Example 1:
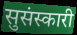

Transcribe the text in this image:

सुसंस्कारी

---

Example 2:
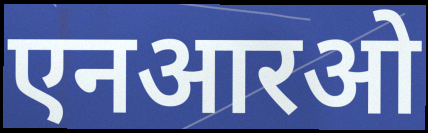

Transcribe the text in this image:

एनआरओ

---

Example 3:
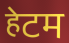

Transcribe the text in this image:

हेटम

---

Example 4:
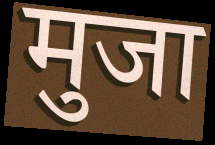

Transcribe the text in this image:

मुजा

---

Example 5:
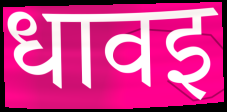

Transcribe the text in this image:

धावइ